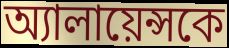
অ্যালায়েন্সকে